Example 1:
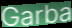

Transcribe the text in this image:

Garba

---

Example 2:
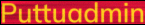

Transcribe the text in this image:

Puttuadmin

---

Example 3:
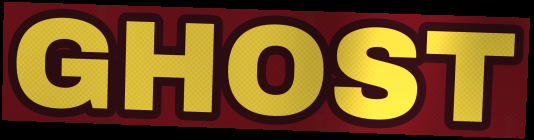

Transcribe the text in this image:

GHOST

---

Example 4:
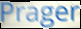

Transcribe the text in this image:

Prager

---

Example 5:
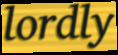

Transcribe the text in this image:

lordly